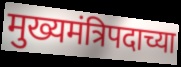
मुख्यमंत्रिपदाच्या